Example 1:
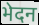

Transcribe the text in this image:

भेदन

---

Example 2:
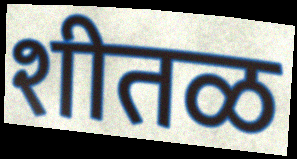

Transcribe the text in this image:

शीतळ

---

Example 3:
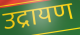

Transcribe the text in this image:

उद्रायण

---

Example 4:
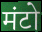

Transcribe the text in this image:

मंटो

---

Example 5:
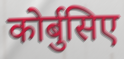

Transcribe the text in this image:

कोर्बुसिए